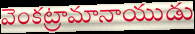
వెంకట్రామానాయుడు